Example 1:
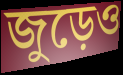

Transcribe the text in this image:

জুড়েও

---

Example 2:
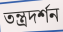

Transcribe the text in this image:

তন্ত্রদর্শন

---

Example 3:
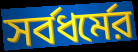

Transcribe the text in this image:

সর্বধর্মের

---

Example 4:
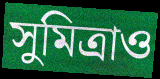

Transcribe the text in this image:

সুমিত্রাও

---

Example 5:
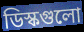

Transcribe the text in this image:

ডিস্কগুলো